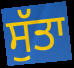
ਸੁੱਤਾ